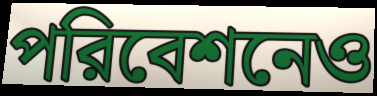
পরিবেশনেও